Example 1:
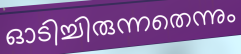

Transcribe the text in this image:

ഓടിച്ചിരുന്നതെന്നും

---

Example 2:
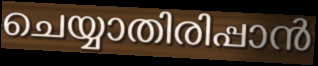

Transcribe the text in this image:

ചെയ്യാതിരിപ്പാൻ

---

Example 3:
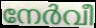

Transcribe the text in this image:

നേർവീ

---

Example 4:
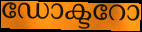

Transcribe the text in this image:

ഡോക്ടറോ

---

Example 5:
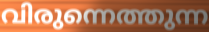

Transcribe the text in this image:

വിരുന്നെത്തുന്ന